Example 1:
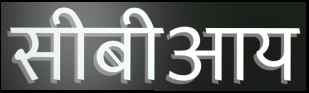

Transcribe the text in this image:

सीबीआय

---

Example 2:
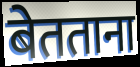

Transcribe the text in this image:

बेतताना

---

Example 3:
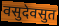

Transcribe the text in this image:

वसुदेवसुत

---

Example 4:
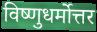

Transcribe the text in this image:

विष्णुधर्मोत्तर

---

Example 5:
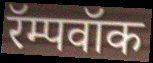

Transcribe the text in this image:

रॅम्पवॉक